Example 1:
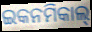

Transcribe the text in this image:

ଇକନମିକାଲ୍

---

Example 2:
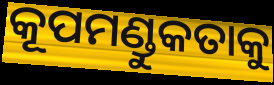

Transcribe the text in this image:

କୂପମଣ୍ଡୁକତାକୁ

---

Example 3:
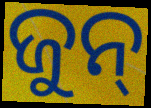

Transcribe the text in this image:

ଜୁନ୍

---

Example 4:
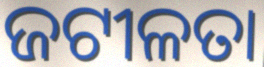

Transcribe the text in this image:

ଜଟୀଳତା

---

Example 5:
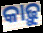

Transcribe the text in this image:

କାଢ଼ୁ